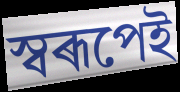
স্বৰূপেই